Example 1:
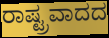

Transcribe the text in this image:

ರಾಷ್ಟ್ರವಾದದ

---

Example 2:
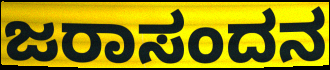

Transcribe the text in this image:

ಜರಾಸಂದನ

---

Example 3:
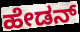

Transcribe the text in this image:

ಹೇಡನ್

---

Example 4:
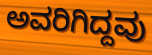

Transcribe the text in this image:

ಅವರಿಗಿದ್ದವು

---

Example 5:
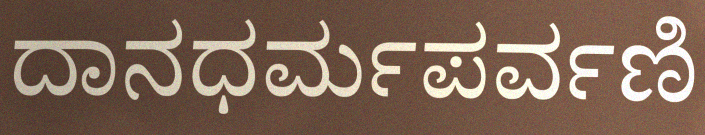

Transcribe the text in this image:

ದಾನಧರ್ಮಪರ್ವಣಿ